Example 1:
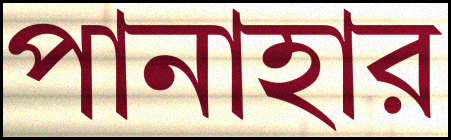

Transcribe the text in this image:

পানাহার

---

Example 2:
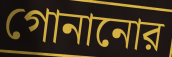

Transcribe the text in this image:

গোনানোর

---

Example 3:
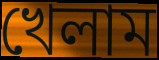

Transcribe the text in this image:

খেলাম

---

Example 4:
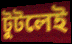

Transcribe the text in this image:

টুটলেই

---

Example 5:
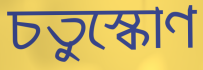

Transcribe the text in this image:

চতুস্কোণ